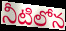
నీటిలోన